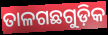
ତାଳଗଛଗୁଡ଼ିକ